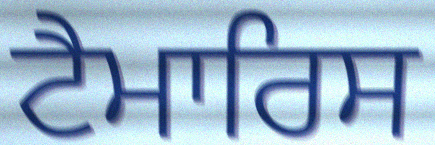
ਟੈਮਾਰਿਸ